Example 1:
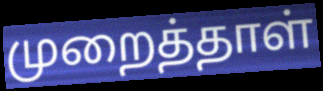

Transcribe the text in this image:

முறைத்தாள்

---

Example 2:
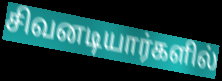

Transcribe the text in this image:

சிவனடியார்களில்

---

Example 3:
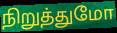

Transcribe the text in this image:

நிறுத்துமோ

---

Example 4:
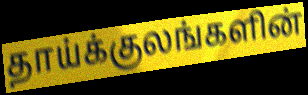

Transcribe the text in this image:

தாய்க்குலங்களின்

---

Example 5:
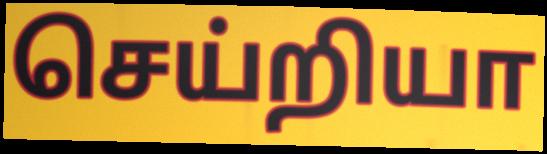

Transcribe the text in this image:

செய்றியா